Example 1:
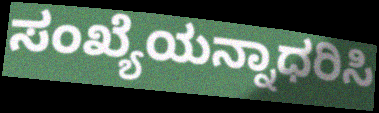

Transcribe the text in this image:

ಸಂಖ್ಯೆಯನ್ನಾಧರಿಸಿ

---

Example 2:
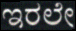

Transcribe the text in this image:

ಇರಲೇ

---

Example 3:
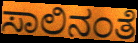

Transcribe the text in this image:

ಸಾಲಿನಂತೆ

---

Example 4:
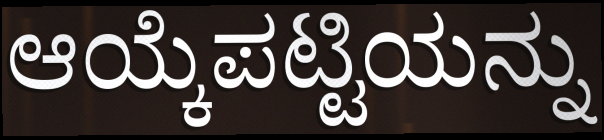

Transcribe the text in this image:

ಆಯ್ಕೆಪಟ್ಟಿಯನ್ನು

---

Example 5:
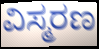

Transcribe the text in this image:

ವಿಸ್ಮರಣ